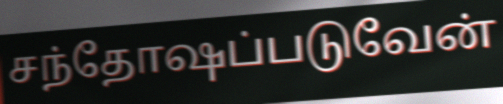
சந்தோஷப்படுவேன்